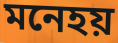
মনেহয়